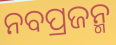
ନବପ୍ରଜନ୍ମ